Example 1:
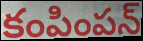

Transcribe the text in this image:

కంపింపన్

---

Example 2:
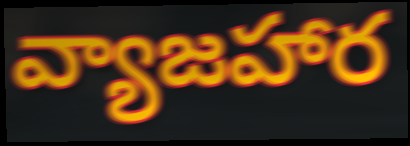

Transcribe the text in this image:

వ్యాజహార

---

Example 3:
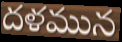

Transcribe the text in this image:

దళమున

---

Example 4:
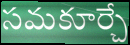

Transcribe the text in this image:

సమకూర్చే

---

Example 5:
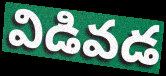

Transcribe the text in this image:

విడివడ